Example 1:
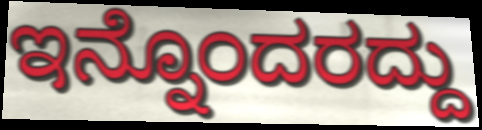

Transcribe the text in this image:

ಇನ್ನೊಂದರದ್ದು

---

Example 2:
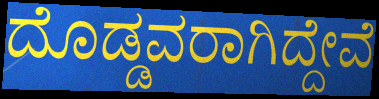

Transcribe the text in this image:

ದೊಡ್ಡವರಾಗಿದ್ದೇವೆ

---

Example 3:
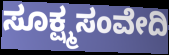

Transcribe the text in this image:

ಸೂಕ್ಷ್ಮಸಂವೇದಿ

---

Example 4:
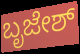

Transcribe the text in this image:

ಬೃಜೇಶ್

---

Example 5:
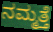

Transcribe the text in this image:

ನಮ್ಮತ್ತೆ